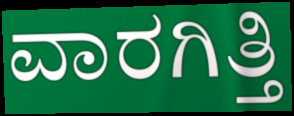
ವಾರಗಿತ್ತಿ